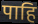
पाहि